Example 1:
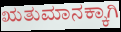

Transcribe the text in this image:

ಋತುಮಾನಕ್ಕಾಗಿ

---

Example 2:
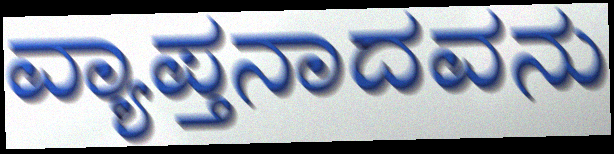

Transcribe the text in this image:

ವ್ಯಾಪ್ತನಾದವನು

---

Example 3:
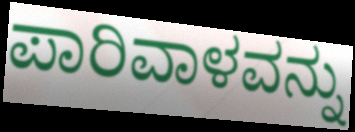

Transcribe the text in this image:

ಪಾರಿವಾಳವನ್ನು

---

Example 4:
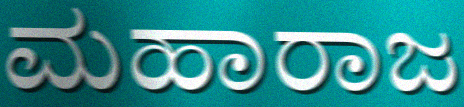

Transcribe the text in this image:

ಮಹಾರಾಜ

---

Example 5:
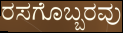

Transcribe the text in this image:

ರಸಗೊಬ್ಬರವು